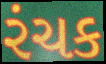
રંચક